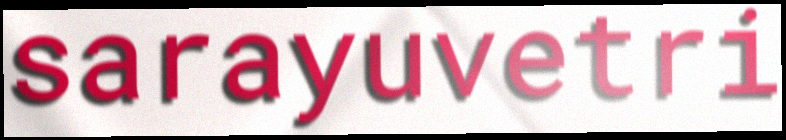
sarayuvetri